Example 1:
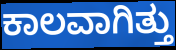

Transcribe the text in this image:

ಕಾಲವಾಗಿತ್ತು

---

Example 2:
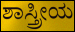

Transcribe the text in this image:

ಶಾಸ್ತ್ರೀಯ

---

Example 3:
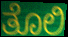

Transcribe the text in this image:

ತೊಲಿ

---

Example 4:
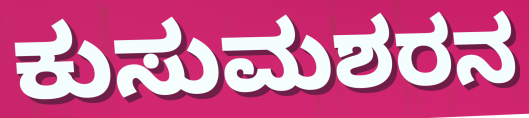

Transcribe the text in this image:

ಕುಸುಮಶರನ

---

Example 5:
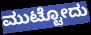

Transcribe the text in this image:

ಮುಟ್ಟೋದು